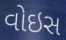
વોઇસ